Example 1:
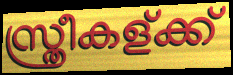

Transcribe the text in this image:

സ്ത്രീകള്ക്ക്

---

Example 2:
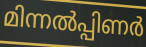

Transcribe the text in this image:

മിന്നൽപ്പിണർ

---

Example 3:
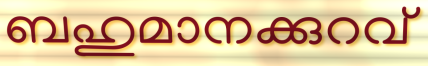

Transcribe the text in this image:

ബഹുമാനക്കുറവ്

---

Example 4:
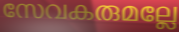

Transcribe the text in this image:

സേവകരുമല്ലേ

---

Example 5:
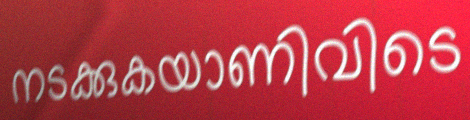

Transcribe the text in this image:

നടക്കുകയാണിവിടെ